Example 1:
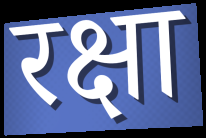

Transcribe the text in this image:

रक्षा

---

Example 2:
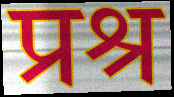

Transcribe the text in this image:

प्रश्र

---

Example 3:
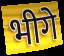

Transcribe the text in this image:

भीगे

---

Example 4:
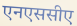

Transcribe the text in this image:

एनएससीए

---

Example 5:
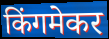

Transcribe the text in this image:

किंगमेकर